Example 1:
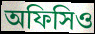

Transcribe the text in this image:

অফিসিও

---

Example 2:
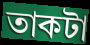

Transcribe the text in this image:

তাকটা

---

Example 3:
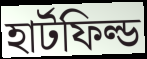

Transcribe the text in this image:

হার্টফিল্ড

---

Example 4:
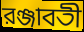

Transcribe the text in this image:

রঞ্জাবতী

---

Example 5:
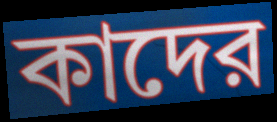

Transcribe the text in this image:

কাদের